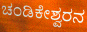
ಚಂಡಿಕೇಶ್ವರನ